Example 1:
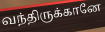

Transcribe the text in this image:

வந்திருக்கானே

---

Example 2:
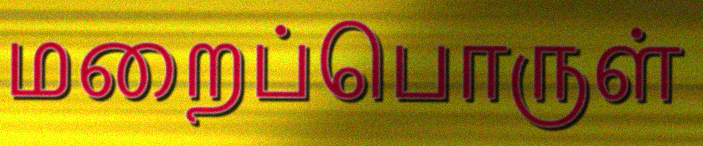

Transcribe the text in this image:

மறைப்பொருள்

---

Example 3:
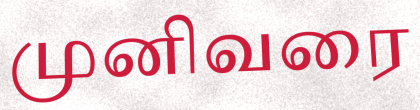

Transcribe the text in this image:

முனிவரை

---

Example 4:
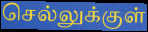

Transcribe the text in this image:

செல்லுக்குள்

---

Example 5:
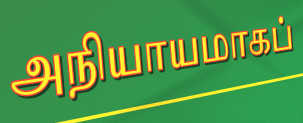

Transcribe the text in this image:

அநியாயமாகப்